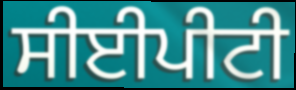
ਸੀਈਪੀਟੀ